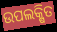
ଉପଲକ୍ଷିତ